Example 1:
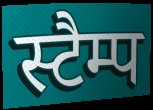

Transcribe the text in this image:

स्टैम्प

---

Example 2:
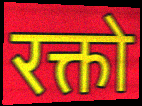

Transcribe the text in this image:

रक्तो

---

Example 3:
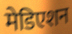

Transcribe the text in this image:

मेडिएशन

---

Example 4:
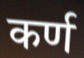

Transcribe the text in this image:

कर्ण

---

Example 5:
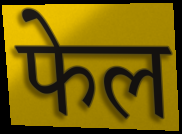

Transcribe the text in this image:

फेल